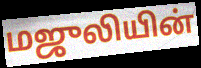
மஜுலியின்